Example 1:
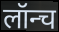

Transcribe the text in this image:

लॉन्‍च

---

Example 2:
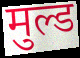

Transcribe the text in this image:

मुल्ड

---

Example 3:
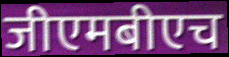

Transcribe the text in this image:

जीएमबीएच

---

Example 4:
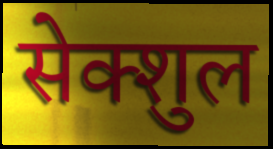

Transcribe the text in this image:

सेक्शुल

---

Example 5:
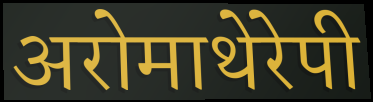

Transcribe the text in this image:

अरोमाथेरेपी